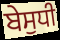
ਬੇਸੁਧੀ